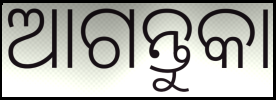
ଆଗନ୍ତୁକା